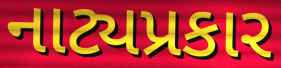
નાટ્યપ્રકાર